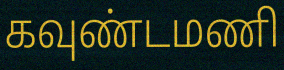
கவுண்டமணி